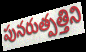
పునరుత్పత్తిని